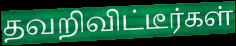
தவறிவிட்டீர்கள்